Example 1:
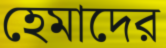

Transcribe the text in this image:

হেমাদের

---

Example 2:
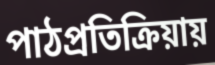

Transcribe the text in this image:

পাঠপ্রতিক্রিয়ায়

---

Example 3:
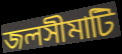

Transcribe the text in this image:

জলসীমাটি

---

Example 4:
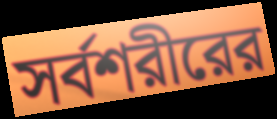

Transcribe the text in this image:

সর্বশরীরের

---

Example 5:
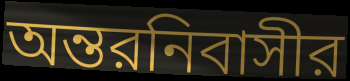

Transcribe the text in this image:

অন্তরনিবাসীর